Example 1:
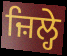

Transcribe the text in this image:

ਜ਼ਿਲ੍ਹੇ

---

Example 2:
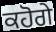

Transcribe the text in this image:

ਕਹੋਗੇ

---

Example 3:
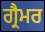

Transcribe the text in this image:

ਗ੍ਰੈਮਰ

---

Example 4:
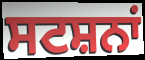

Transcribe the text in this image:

ਸਟਸ਼ਨਾਂ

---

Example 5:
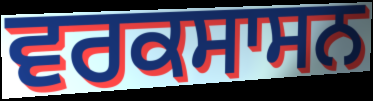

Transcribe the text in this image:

ਵਰਕਸਾਸਨ